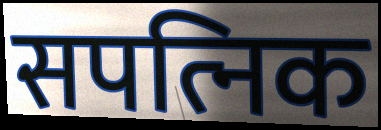
सपत्‍निक